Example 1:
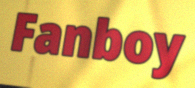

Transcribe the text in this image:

Fanboy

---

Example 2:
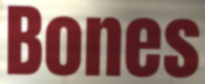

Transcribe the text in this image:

Bones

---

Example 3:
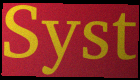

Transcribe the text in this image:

Syst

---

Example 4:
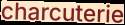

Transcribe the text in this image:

charcuterie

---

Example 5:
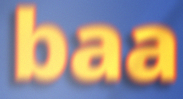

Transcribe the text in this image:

baa